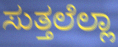
ಸುತ್ತಲೆಲ್ಲಾ